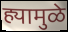
ह्यामुळे